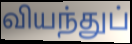
வியந்துப்